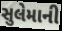
સુલેમાની